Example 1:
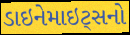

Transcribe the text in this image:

ડાઇનેમાઇટ્સનો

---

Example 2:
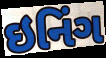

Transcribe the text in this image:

ઇનિંગ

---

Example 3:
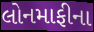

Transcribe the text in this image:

લોનમાફીના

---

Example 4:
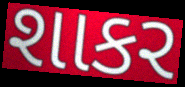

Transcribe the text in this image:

શાકર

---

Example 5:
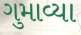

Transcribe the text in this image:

ગુમાવ્યા